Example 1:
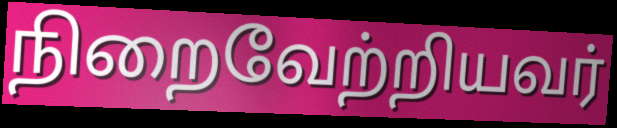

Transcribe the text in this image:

நிறைவேற்றியவர்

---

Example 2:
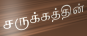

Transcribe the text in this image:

சருக்கத்தின்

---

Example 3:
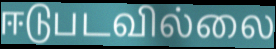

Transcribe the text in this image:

ஈடுபடவில்லை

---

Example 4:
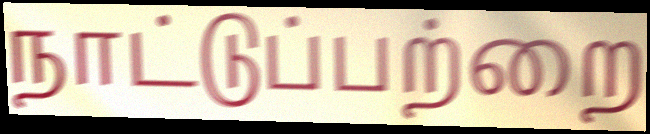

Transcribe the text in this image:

நாட்டுப்பற்றை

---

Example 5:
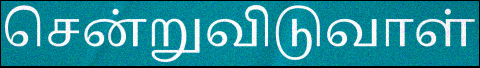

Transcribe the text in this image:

சென்றுவிடுவாள்